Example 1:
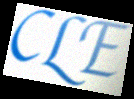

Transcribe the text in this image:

CLE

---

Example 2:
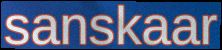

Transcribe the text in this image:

sanskaar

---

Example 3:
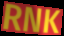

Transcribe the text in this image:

RNK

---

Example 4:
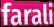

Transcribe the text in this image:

farali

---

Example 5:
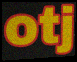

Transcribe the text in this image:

otj